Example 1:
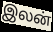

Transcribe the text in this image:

இலன்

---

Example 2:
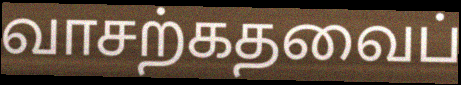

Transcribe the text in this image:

வாசற்கதவைப்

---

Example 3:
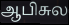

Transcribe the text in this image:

ஆபிசுல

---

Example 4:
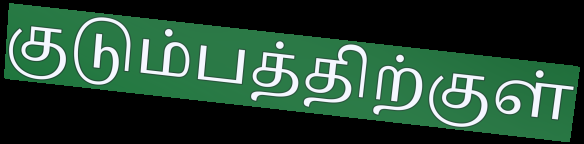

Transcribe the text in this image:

குடும்பத்திற்குள்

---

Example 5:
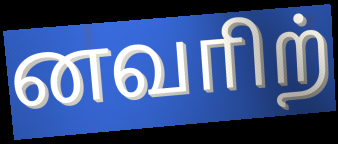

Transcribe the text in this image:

னவரிற்